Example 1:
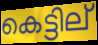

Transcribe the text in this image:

കെട്ടില്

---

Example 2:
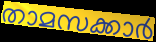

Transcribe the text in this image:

താമസക്കാർ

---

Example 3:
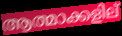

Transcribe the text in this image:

ആത്മാക്കളില്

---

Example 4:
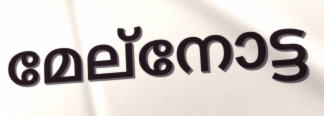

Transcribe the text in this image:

മേല്നോട്ട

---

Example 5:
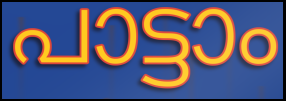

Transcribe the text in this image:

പാട്ടാം